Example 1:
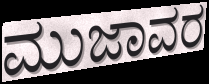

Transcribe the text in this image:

ಮುಜಾವರ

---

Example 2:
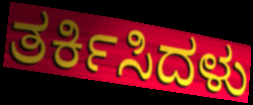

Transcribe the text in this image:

ತರ್ಕಿಸಿದಳು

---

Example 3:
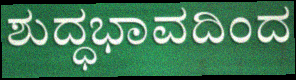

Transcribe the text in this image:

ಶುದ್ಧಭಾವದಿಂದ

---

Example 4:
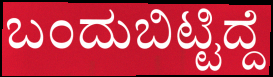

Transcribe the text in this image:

ಬಂದುಬಿಟ್ಟಿದ್ದೆ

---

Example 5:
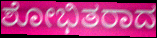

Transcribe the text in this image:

ಶೋಭಿತರಾದ